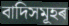
বাদিসমূহৰ